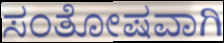
ಸಂತೋಷವಾಗಿ